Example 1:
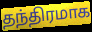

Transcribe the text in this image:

தந்திரமாக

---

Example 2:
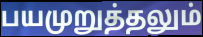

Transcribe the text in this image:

பயமுறுத்தலும்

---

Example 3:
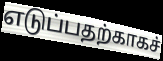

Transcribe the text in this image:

எடுப்பதற்காகச்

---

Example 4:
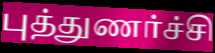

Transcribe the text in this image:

புத்துணர்ச்சி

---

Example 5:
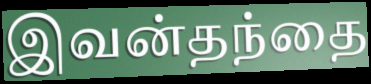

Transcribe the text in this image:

இவன்தந்தை